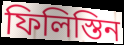
ফিলিস্তিন